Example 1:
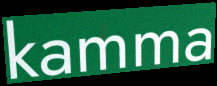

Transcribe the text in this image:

kamma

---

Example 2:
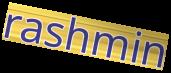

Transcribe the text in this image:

rashmin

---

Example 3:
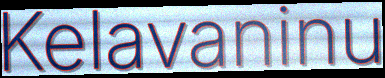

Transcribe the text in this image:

Kelavaninu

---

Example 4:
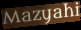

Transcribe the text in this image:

Mazyahi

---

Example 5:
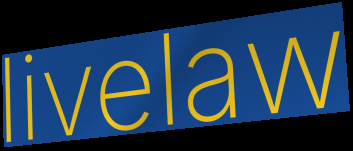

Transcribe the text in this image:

livelaw